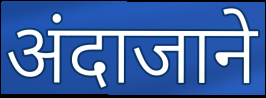
अंदाजाने